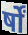
र्षों